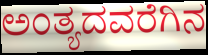
ಅಂತ್ಯದವರೆಗಿನ